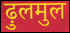
ढ़ुलमुल